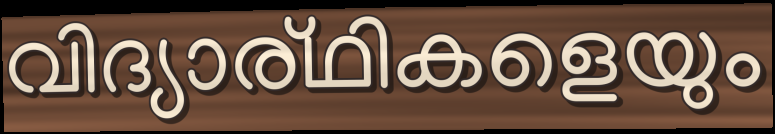
വിദ്യാര്ഥികളെയും